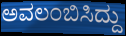
ಅವಲಂಬಿಸಿದ್ದು